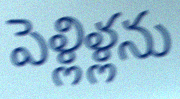
పెళ్లిళ్లను